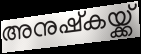
അനുഷ്കയ്ക്ക്